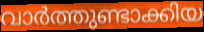
വാർത്തുണ്ടാക്കിയ